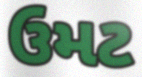
ઉમટ